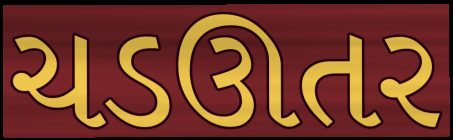
ચડઊતર